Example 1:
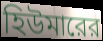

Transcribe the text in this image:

হিউমারের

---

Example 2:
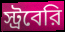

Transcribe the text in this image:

স্ট্রবেরি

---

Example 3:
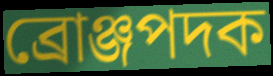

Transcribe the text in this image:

ব্রোঞ্জপদক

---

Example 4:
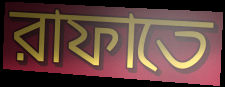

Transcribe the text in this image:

রাফাতে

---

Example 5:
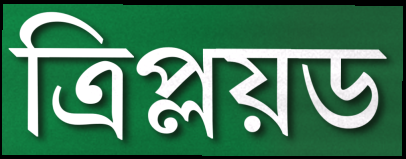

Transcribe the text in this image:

ত্রিপ্লয়ড